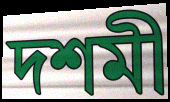
দশমী